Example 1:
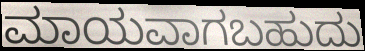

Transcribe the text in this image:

ಮಾಯವಾಗಬಹುದು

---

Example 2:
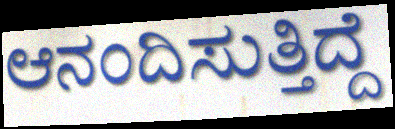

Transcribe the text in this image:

ಆನಂದಿಸುತ್ತಿದ್ದೆ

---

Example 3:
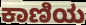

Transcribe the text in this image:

ಕಾಣಿಯ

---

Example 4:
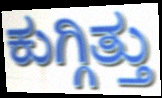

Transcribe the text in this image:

ಕುಗ್ಗಿತ್ತು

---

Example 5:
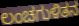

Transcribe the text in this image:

ಲಂಚಗುಳಿತನ